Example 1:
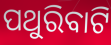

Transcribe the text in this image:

ପଥୁରିବାଟି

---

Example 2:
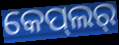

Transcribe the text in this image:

କେପ୍‌ଲର୍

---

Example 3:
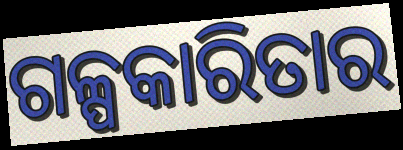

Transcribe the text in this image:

ଗଳ୍ପକାରିତାର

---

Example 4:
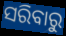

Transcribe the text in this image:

ସରିବାରୁ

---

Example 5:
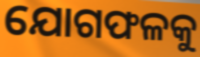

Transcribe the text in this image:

ଯୋଗଫଳକୁ